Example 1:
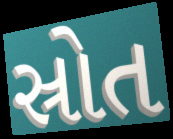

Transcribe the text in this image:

સ્રોત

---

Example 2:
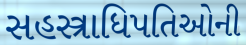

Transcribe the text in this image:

સહસ્ત્રાધિપતિઓની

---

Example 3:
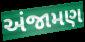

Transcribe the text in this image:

અંજામણ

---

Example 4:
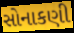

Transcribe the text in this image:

સોનાકણી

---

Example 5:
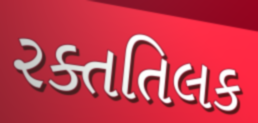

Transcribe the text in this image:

રક્તતિલક